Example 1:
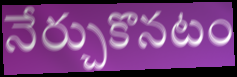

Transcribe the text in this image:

నేర్చుకొనటం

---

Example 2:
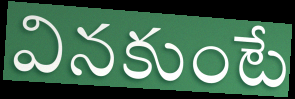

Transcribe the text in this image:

వినకుంటే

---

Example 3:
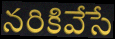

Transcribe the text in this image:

నరికివేసే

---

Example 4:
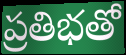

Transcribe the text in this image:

ప్రతిభతో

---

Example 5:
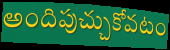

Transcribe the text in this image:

అందిపుచ్చుకోవటం